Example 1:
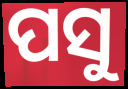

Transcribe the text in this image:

ପସୁ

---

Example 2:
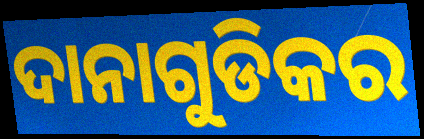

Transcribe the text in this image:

ଦାନାଗୁଡିକର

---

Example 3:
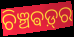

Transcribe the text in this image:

ଚିଞ୍ଚଵଡ଼୍‌ର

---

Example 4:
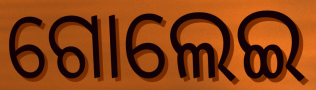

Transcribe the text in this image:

ଗୋଲେଇ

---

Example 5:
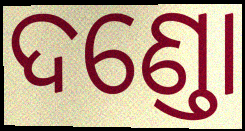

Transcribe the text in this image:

ଦଣ୍ଡୋ